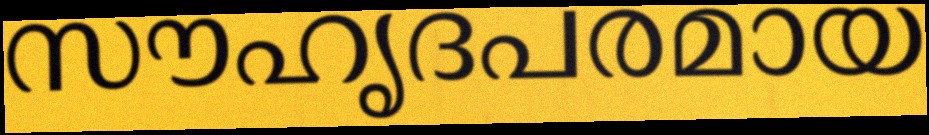
സൗഹൃദപരമായ